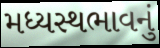
મધ્યસ્થભાવનું